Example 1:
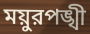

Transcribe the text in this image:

ময়ুরপঙ্খী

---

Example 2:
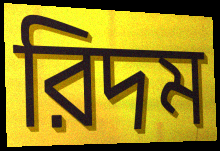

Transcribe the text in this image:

রিদম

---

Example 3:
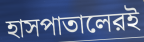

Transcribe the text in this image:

হাসপাতালেরই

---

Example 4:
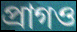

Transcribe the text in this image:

প্রাগও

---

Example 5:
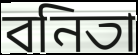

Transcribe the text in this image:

বনিতা